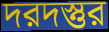
দরদস্তুর